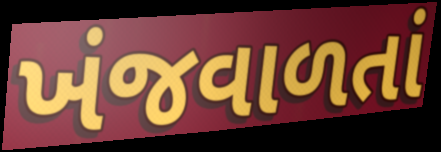
ખંજવાળતાં